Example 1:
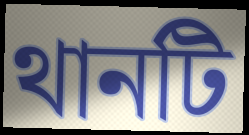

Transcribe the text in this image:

থানটি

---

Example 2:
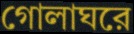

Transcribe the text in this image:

গোলাঘরে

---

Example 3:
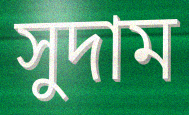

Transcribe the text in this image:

সুদাম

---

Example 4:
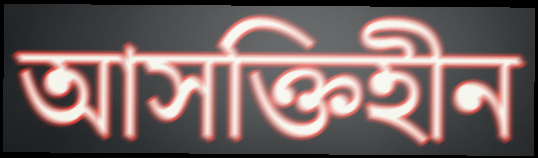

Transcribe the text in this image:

আসক্তিহীন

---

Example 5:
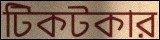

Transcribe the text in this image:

টিকটকার